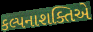
કલ્પનાશક્તિએ